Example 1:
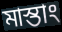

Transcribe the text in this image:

মাস্তাং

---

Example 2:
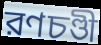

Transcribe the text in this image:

রণচণ্ডী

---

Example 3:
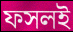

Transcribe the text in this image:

ফসলই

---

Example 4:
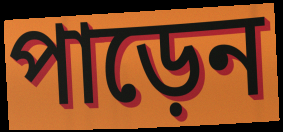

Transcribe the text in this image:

পাড়েন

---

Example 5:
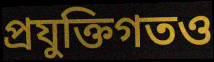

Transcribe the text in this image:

প্রযুক্তিগতও